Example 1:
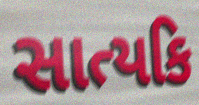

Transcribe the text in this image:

સાત્યકિ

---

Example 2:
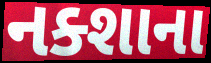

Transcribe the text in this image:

નક્શાના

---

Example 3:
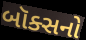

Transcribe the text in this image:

બૉક્સનો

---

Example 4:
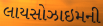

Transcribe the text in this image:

લાયસોઝાઇમની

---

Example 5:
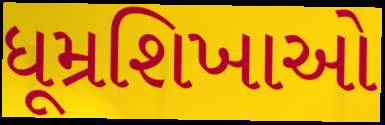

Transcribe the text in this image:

ધૂમ્રશિખાઓ